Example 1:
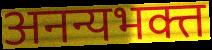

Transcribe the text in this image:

अनन्यभक्त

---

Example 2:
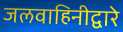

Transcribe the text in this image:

जलवाहिनीद्वारे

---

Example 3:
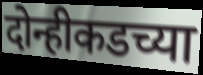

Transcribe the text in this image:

दोन्हीकडच्या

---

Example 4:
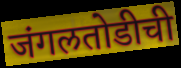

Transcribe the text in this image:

जंगलतोडीची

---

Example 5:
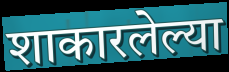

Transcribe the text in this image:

शाकारलेल्या